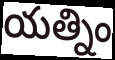
యత్నిం